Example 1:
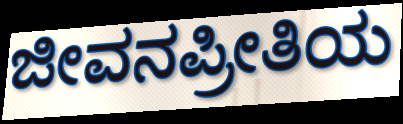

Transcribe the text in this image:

ಜೀವನಪ್ರೀತಿಯ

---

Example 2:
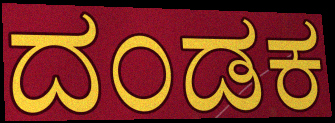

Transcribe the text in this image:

ದಂಡಕ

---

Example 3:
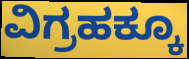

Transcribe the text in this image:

ವಿಗ್ರಹಕ್ಕೂ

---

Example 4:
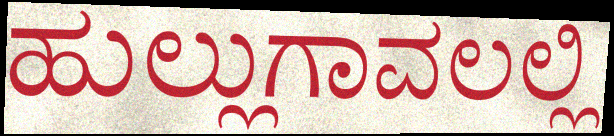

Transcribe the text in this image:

ಹುಲ್ಲುಗಾವಲಲ್ಲಿ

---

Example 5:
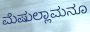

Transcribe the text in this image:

ಮೆಷುಲ್ಲಾಮನೂ